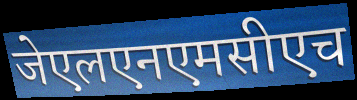
जेएलएनएमसीएच